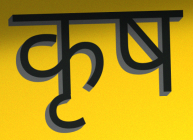
कृष